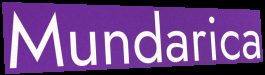
Mundarica